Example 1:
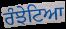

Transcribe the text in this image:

ਰੰਝੇਟਿਆ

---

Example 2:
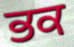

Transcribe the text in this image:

ਭਕ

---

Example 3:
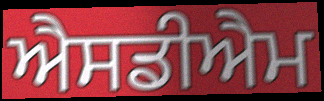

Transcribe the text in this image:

ਐਸਡੀਐਮ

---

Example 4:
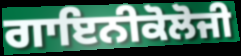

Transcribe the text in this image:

ਗਾਇਨੀਕੋਲੋਜੀ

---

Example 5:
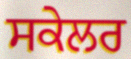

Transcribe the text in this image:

ਸਕੇਲਰ